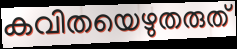
കവിതയെഴുതരുത്